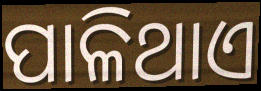
ପାଳିଥାଏ